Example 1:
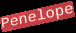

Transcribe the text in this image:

Penelope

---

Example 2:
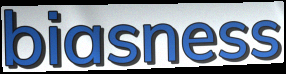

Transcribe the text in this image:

biasness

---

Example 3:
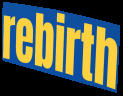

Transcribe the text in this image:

rebirth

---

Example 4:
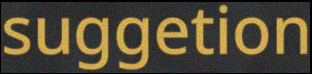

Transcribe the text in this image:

suggetion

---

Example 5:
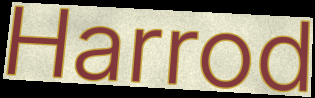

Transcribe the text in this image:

Harrod